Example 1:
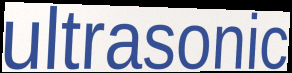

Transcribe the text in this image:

ultrasonic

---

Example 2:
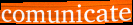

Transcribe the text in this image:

comunicate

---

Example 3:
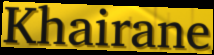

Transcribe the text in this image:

Khairane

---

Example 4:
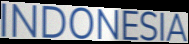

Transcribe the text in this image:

INDONESIA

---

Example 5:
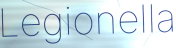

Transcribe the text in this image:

Legionella